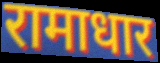
रामाधार